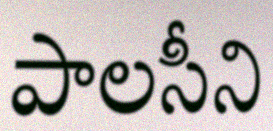
పాలసీని